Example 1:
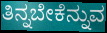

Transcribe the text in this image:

ತಿನ್ನಬೇಕೆನ್ನುವ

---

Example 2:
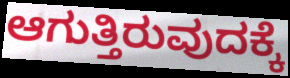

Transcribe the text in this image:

ಆಗುತ್ತಿರುವುದಕ್ಕೆ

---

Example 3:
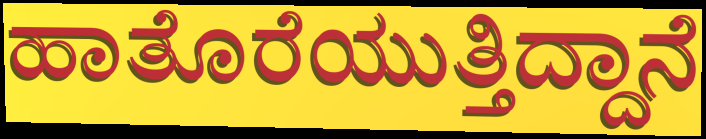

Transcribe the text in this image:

ಹಾತೊರೆಯುತ್ತಿದ್ದಾನೆ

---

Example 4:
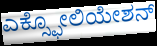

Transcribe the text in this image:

ಎಕ್ಸ್ಫೋಲಿಯೇಶನ್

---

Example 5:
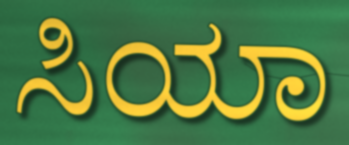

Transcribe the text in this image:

ಸಿಯಾ